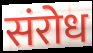
संरोध